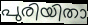
പുരിയിതാ